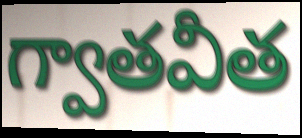
గ్వాతవీత